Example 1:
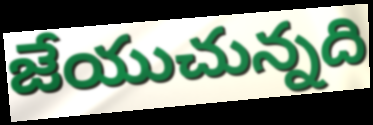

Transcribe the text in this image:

జేయుచున్నది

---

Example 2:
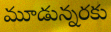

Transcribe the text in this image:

మూడున్నరకు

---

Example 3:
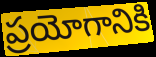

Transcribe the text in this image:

ప్రయోగానికి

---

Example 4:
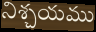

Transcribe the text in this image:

నిశ్చయము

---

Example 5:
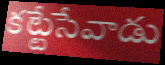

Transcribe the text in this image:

కట్టేసేవాడు